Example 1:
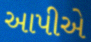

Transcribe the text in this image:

આપીએ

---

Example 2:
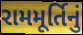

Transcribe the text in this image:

રામમૂર્તિનું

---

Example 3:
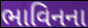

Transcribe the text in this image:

ભાવિનના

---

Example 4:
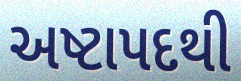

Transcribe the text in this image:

અષ્ટાપદથી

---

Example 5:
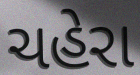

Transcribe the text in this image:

ચહેરા